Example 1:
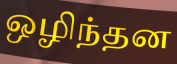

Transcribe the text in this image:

ஒழிந்தன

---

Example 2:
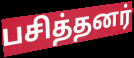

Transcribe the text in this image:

பசித்தனர்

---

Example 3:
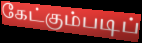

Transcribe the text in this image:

கேட்கும்படிப்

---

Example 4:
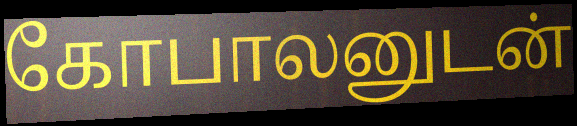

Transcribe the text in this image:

கோபாலனுடன்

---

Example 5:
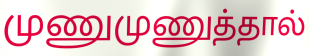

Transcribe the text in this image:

முணுமுணுத்தால்